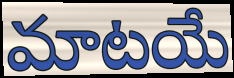
మాటయే